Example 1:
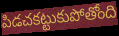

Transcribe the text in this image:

పిడచకట్టుకుపోతోంది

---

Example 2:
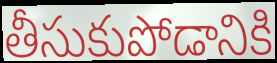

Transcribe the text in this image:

తీసుకుపోడానికి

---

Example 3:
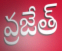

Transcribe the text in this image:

వ్రజేత్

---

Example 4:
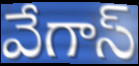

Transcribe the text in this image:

వేగాస్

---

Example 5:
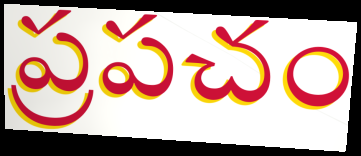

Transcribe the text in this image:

ప్రపచం